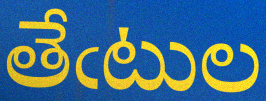
తేఁటుల